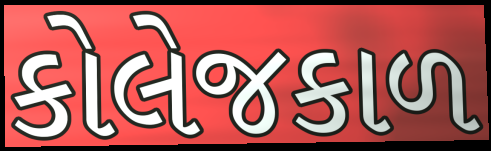
કોલેજકાળ